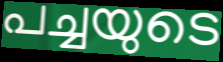
പച്ചയുടെ